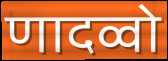
णादव्वो